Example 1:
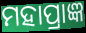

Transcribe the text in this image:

ମହାପ୍ରାଜ୍ଞ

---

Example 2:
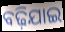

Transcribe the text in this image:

ବଢ଼ିଯାଇ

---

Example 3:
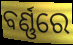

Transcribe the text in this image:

ବର୍ଣ୍ଣରେ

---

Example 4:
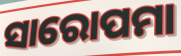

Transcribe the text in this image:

ସାରୋପମା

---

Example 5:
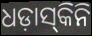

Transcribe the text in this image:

ଧଡ଼ାସ୍‌କିନି